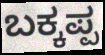
ಬಕ್ಕಪ್ಪ